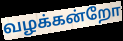
வழக்கன்றோ